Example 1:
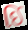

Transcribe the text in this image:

ઈિ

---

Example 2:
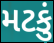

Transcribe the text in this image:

મટકું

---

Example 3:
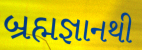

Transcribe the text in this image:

બ્રહ્મજ્ઞાનથી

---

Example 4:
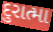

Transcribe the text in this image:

દુરાત્મા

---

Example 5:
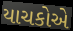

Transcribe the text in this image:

યાચકોએ